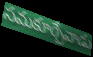
సమకూర్చేవాడు